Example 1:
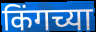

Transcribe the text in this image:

किंगच्या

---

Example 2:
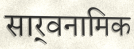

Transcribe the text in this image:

सार्वनामिक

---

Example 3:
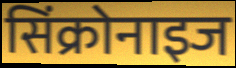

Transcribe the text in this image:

सिंक्रोनाइज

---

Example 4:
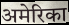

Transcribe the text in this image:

अमेरिका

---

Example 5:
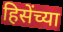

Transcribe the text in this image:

हिसेंच्या